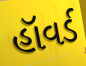
હૉવર્ડ